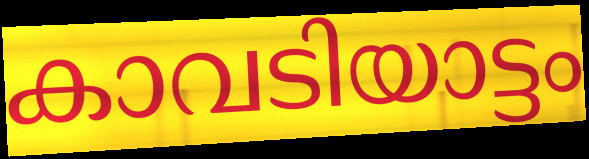
കാവടിയാട്ടം